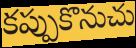
కప్పుకొనుచు